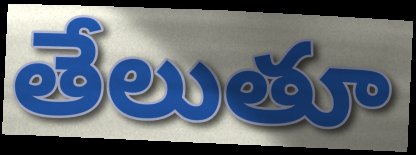
తేలుతూ